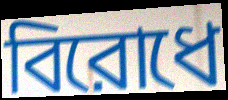
বিরোধে